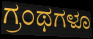
ಗ್ರಂಥಗಳೂ